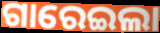
ଗାରେଇଲା